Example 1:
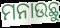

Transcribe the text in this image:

ମନାଉଛୁ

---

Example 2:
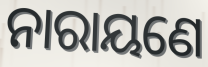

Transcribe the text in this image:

ନାରାୟଣେ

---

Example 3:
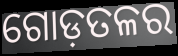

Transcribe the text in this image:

ଗୋଡ଼ତଳର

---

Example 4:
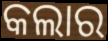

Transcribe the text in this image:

କଲାର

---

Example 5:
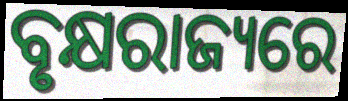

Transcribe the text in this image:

ବୃକ୍ଷରାଜ୍ୟରେ